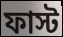
ফাস্ট